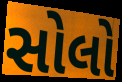
સોલો